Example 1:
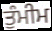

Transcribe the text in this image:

ਤੁੰਮੀਮ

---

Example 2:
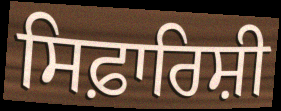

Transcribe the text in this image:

ਸਿਫ਼ਾਰਿਸ਼ੀ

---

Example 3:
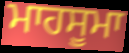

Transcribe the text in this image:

ਮਾਹਸੂਮਾ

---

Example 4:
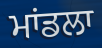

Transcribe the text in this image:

ਮਾਂਡਲਾ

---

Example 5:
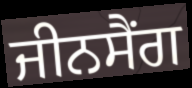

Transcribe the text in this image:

ਜੀਨਸੈਂਗ